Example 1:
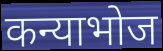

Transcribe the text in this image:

कन्याभोज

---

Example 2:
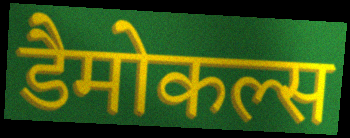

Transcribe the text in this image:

डैमोकल्स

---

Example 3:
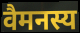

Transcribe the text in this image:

वैमनस्य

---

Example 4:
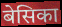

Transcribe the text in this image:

बेसिका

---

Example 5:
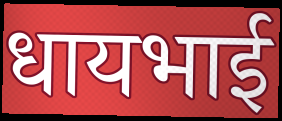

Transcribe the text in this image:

धायभाई